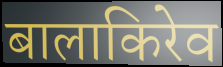
बालाकिरेव